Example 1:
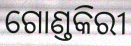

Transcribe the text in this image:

ଗୋଣ୍ଡକିରୀ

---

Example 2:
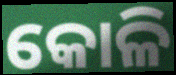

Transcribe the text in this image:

କୋଳି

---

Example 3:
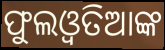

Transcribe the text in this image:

ଫୁଲଓ୍ୱତିଆଙ୍କ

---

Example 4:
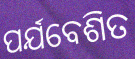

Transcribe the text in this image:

ପର୍ଯବେଶିତ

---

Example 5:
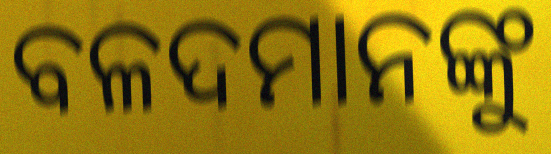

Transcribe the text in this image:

ବଳଦମାନଙ୍କୁ